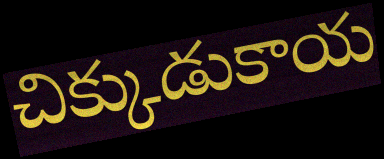
చిక్కుడుకాయ